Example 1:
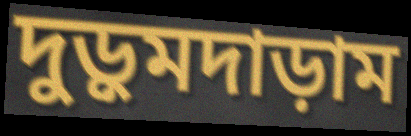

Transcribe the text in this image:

দুড়ুমদাড়াম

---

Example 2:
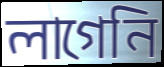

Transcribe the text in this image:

লাগেনি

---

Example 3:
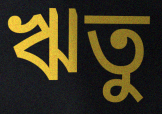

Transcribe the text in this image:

ঋতু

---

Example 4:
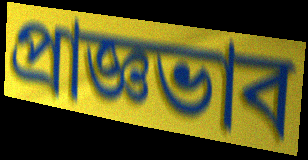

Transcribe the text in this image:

প্রাজ্ঞভাব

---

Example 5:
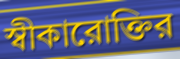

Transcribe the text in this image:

স্বীকারোক্তির